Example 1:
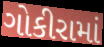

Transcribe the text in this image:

ગોકીરામાં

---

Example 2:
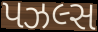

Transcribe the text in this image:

પઝલ્સ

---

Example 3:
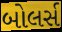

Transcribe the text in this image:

બોલર્સ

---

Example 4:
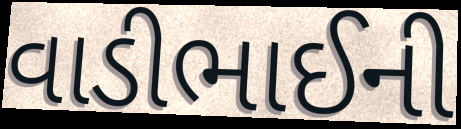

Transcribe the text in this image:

વાડીભાઈની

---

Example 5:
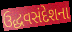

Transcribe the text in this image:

ઉદ્ધવસંદેશના